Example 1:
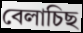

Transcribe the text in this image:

বেলাচিছ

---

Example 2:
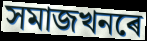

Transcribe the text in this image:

সমাজখনৰে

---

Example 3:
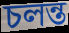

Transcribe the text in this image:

চলন্ত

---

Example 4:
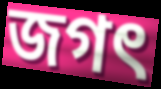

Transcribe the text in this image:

জগৎ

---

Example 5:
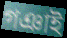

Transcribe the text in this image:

গঞাই